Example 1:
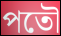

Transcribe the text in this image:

পতৌ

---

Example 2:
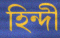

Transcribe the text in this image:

হিন্দী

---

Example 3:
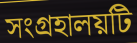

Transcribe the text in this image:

সংগ্রহালয়টি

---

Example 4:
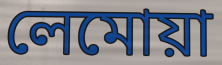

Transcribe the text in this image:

লেমোয়া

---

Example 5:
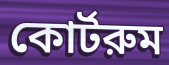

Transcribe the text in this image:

কোর্টরুম